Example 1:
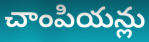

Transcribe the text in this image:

చాంపియన్లు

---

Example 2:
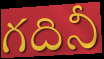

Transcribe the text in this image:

గదినీ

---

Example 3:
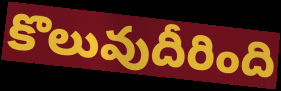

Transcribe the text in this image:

కొలువుదీరింది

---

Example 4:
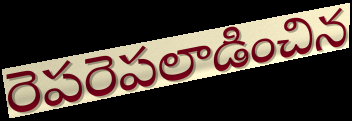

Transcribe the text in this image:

రెపరెపలాడించిన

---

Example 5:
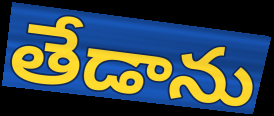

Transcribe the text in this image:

తేడాను